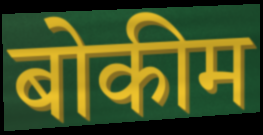
बोकीम